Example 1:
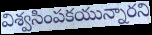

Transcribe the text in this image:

విశ్వసింపకయున్నారని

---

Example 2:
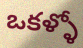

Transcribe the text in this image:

ఒకళ్ళో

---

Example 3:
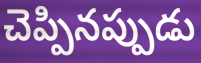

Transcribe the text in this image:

చెప్పినప్పుడు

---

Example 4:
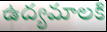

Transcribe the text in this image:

ఉద్యమాలకి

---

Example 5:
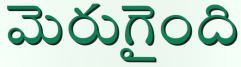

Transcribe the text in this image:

మెరుగైంది